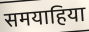
समयाहिया